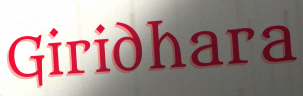
Giridhara